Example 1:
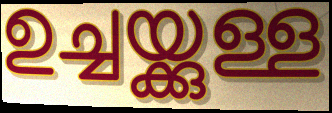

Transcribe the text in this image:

ഉച്ചയ്ക്കുള്ള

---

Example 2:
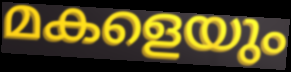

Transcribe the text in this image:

മകളെയും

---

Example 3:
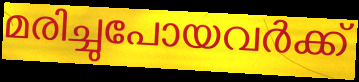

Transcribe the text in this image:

മരിച്ചുപോയവർക്ക്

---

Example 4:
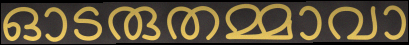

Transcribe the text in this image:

ഓടരുതമ്മാവാ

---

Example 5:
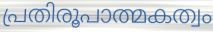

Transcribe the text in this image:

പ്രതിരൂപാത്മകത്വം